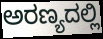
ಅರಣ್ಯದಲ್ಲಿ